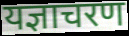
यज्ञाचरण